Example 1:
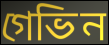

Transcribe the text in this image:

গেভিন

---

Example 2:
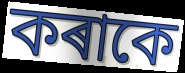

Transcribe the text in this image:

কৰাকে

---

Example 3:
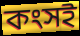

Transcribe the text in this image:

কংসই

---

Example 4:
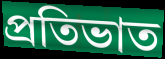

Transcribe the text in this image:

প্ৰতিভাত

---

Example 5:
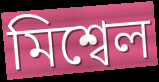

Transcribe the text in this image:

মিশ্বেল